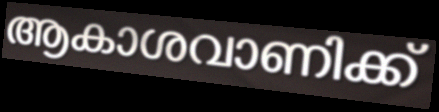
ആകാശവാണിക്ക്